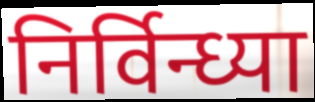
निर्विन्ध्या